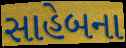
સાહેબના